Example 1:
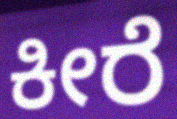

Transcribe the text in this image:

ಕೀರೆ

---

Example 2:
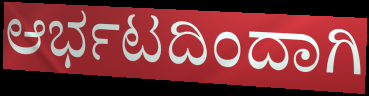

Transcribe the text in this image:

ಆರ್ಭಟದಿಂದಾಗಿ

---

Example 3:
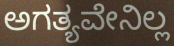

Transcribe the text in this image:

ಅಗತ್ಯವೇನಿಲ್ಲ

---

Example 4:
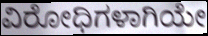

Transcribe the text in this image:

ವಿರೋಧಿಗಳಾಗಿಯೇ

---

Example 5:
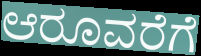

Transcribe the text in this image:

ಆರೂವರೆಗೆ